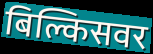
बिल्किसवर